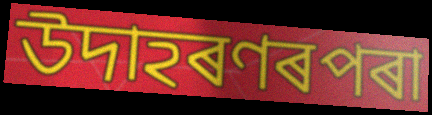
উদাহৰণৰপৰা